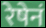
रेषेनं